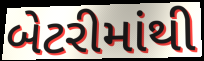
બેટરીમાંથી